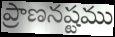
ప్రాణనష్టము